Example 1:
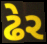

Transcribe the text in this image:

ઢેર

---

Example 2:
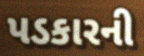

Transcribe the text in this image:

પડકારની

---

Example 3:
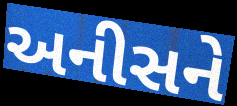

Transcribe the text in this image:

અનીસને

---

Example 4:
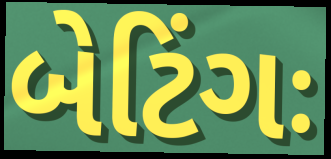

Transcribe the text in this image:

બેટિંગઃ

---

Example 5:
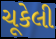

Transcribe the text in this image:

ચૂકેલી